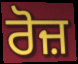
ਰੋਜ਼